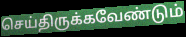
செய்திருக்கவேண்டும்